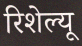
रिशेल्यू